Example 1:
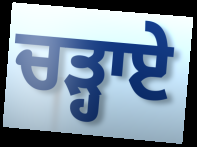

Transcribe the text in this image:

ਚੜ੍ਹਾਏ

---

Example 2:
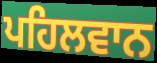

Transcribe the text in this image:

ਪਹਿਲਵਾਨ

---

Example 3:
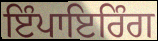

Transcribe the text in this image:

ਇੰਪਾਇਰਿੰਗ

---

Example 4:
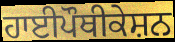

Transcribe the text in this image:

ਹਾਈਪੌਥੀਕੇਸ਼ਨ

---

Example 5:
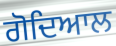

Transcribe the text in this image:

ਗੋਦਿਆਲ